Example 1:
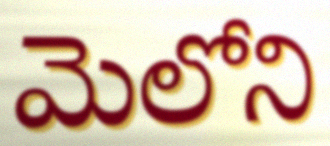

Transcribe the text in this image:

మెలోని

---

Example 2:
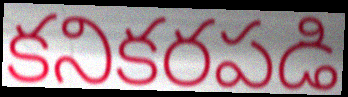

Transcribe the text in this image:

కనికరపడి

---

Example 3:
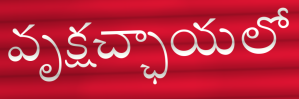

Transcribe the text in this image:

వృక్షచ్ఛాయలో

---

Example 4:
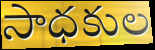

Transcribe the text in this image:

సాధకుల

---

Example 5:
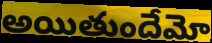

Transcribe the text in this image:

అయితుందేమో